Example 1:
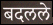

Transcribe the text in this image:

बदलले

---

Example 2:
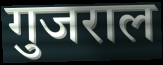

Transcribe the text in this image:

गुजराल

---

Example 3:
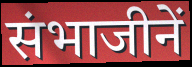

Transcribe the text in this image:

संभाजीनें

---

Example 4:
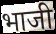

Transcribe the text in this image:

भाजी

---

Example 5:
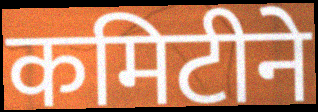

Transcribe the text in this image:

कमिटीने